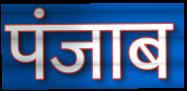
पंजाब